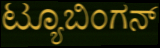
ಟ್ಯೂಬಿಂಗನ್